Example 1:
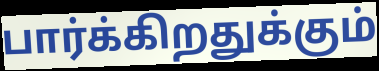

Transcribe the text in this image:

பார்க்கிறதுக்கும்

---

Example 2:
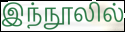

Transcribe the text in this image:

இந்நூலில்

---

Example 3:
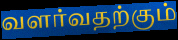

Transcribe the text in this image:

வளர்வதற்கும்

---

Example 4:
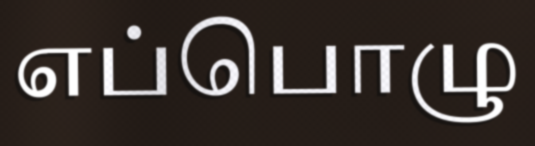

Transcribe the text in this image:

எப்பொழு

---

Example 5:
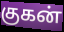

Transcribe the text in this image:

குகன்